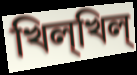
খিল্খিল্